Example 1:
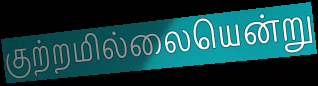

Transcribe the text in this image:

குற்றமில்லையென்று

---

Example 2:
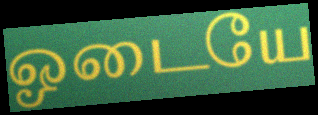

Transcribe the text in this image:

ஓடையே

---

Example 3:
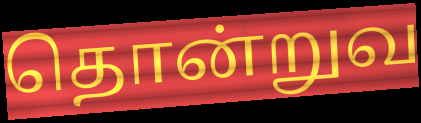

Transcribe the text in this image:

தொன்றுவ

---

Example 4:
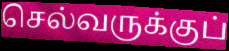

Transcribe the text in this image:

செல்வருக்குப்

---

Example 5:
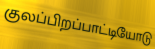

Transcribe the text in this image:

குலப்பிறப்பாட்டியோடு